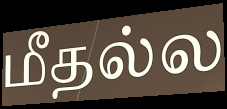
மீதல்ல